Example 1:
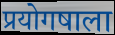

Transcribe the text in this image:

प्रयोगषाला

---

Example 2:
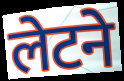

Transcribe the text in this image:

लेटने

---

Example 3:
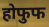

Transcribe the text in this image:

होफुफ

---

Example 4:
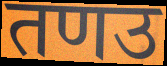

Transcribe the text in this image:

तणउ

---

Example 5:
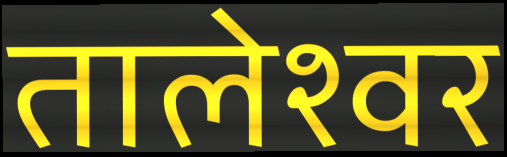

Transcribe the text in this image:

तालेश्वर